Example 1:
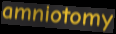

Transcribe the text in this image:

amniotomy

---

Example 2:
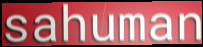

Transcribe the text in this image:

sahuman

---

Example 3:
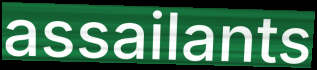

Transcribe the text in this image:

assailants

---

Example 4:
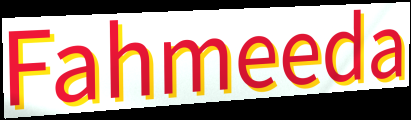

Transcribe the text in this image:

Fahmeeda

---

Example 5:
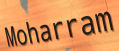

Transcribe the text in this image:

Moharram